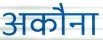
अकौना